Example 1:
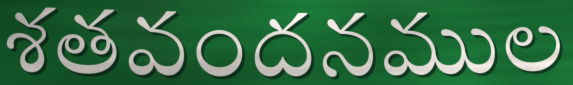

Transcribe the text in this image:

శతవందనముల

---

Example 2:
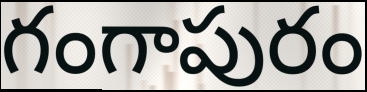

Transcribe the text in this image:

గంగాపురం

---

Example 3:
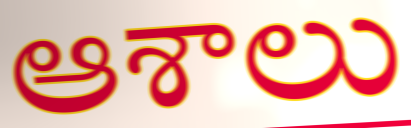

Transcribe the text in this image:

ఆశాలు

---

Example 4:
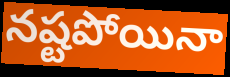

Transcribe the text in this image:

నష్టపోయినా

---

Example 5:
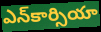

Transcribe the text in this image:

ఎన్‌కార్సియా